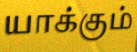
யாக்கும்